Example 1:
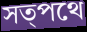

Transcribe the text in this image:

সত্পথে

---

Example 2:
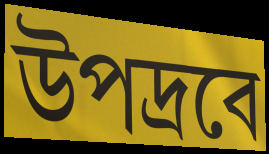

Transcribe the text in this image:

উপদ্রবে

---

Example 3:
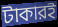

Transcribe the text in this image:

টাকারই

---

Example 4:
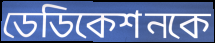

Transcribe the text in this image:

ডেডিকেশনকে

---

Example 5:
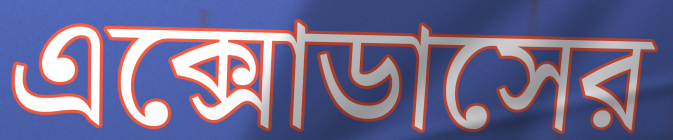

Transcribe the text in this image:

এক্সোডাসের